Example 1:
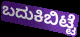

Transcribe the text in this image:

ಬದುಕಿಬಿಟ್ಟೆ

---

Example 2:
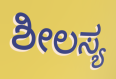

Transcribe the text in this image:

ಶೀಲಸ್ಯ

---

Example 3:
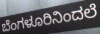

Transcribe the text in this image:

ಬೆಂಗಳೂರಿನಿಂದಲೆ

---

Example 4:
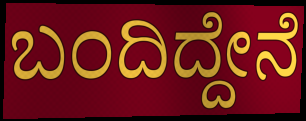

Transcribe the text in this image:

ಬಂದಿದ್ದೇನೆ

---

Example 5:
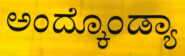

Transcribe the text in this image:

ಅಂದ್ಕೊಂಡ್ಯಾ